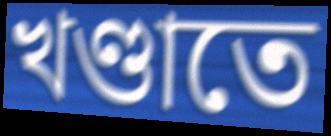
খণ্ডাতে